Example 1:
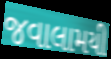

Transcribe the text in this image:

જવાલામયી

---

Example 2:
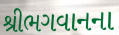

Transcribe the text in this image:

શ્રીભગવાનના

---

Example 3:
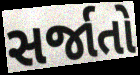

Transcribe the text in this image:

સર્જાતો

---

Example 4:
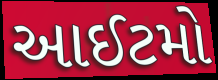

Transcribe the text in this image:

આઈટમો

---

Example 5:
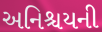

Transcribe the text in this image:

અનિશ્ચયની